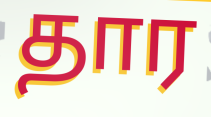
தார